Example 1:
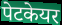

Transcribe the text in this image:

पेटकेयर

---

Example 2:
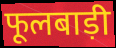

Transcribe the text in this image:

फूलबाड़ी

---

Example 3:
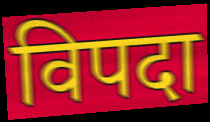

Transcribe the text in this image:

विपदा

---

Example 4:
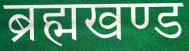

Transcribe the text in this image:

ब्रह्मखण्ड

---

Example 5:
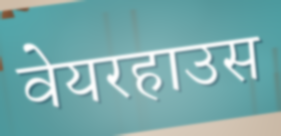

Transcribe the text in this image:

वेयरहाउस